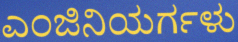
ಎಂಜಿನಿಯರ್ಗಳು